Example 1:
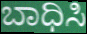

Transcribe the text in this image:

ಬಾಧಿಸಿ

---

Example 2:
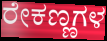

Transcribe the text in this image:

ರೇಕಣ್ಣಗಳ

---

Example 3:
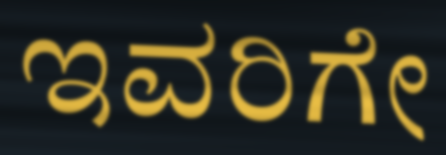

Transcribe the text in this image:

ಇವರಿಗೇ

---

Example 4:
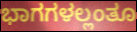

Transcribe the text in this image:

ಭಾಗಗಳಲ್ಲಂತೂ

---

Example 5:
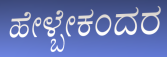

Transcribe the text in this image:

ಹೇಳ್ಬೇಕಂದರ